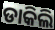
ଡାକିଲି